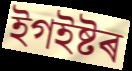
ইগইষ্টৰ